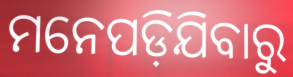
ମନେପଡ଼ିଯିବାରୁ